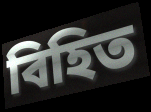
বিহিত